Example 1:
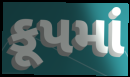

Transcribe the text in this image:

કૂપમાં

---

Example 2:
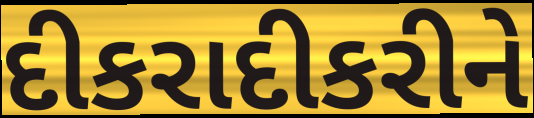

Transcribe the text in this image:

દીકરાદીકરીને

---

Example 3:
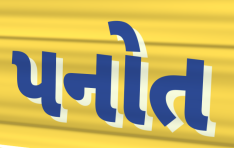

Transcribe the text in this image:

પનોત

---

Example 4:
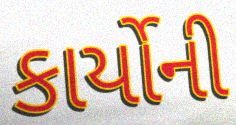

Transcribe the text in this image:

કાર્યોની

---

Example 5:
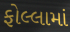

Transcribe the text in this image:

ફોલ્લામાં